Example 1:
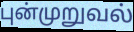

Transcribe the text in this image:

புன்முறுவல்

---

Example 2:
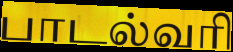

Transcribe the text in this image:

பாடல்வரி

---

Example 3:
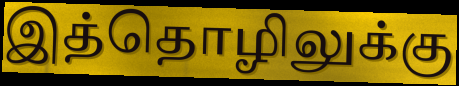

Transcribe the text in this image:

இத்தொழிலுக்கு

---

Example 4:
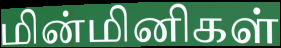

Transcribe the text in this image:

மின்மினிகள்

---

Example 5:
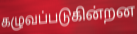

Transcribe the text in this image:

கழுவப்படுகின்றன